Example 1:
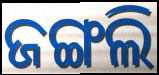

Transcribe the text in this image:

ଜଙ୍ଗଲି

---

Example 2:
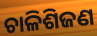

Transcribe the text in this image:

ଚାଳିଶିଜଣ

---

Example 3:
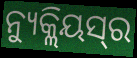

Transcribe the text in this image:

ନ୍ୟୁକ୍ଲିୟସ୍‌ର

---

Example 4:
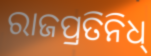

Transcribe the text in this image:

ରାଜପ୍ରତିନିଧ୍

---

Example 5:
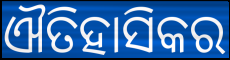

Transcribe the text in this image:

ଐତିହାସିକର